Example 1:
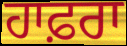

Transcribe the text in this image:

ਹਾਫ਼ਰਾ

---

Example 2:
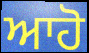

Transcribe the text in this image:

ਆਹੋ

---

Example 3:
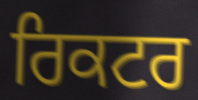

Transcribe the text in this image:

ਰਿਕਟਰ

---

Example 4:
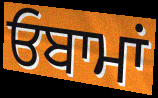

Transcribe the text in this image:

ਓਬਾਮਾਂ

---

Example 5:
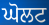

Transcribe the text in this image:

ਘੋਲਟ